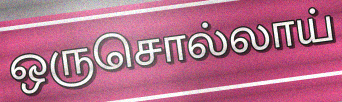
ஒருசொல்லாய்